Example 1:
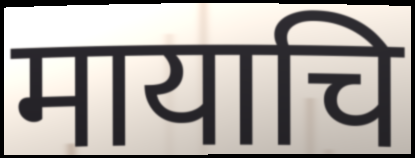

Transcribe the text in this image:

मायाचि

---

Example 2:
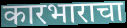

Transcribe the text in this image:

कारभाराचा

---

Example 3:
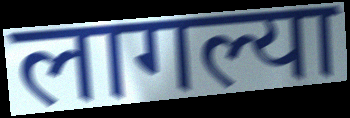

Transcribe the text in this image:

लागल्या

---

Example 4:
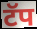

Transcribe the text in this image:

टॅप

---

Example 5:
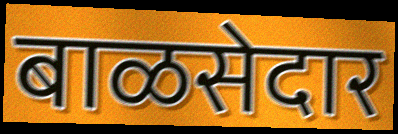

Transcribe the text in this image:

बाळसेदार